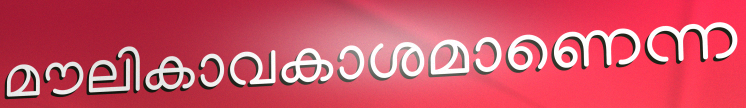
മൗലികാവകാശമാണെന്ന